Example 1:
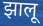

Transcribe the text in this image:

झालू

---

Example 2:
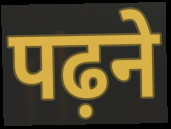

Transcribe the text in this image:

पढ़ने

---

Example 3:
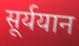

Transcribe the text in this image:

सूर्ययान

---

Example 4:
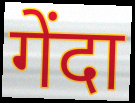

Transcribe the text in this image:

गेंदा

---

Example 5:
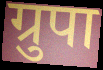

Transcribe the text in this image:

ग्रुपा